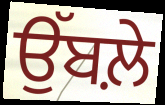
ਉੱਬਲ਼ੇ